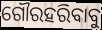
ଗୌରହରିବାବୁ